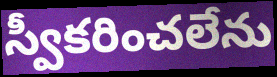
స్వీకరించలేను